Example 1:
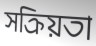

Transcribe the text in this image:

সক্ৰিয়তা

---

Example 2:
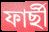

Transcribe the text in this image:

ফাৰ্ছী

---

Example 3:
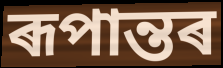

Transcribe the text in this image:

ৰূপান্তৰ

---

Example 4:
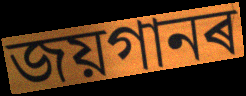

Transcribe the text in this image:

জয়গানৰ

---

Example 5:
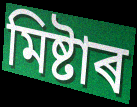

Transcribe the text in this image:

মিষ্টাৰ